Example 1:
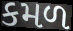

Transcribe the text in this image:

કમળ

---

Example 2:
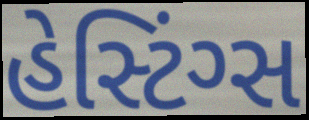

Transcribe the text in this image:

હેસ્ટિંગ્સ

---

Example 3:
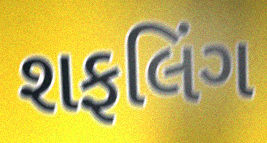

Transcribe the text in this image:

શફલિંગ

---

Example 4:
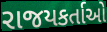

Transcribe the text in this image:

રાજયકર્તાઓ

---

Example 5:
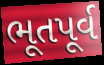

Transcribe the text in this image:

ભૂતપૂર્વ